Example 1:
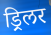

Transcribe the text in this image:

ड्रिलर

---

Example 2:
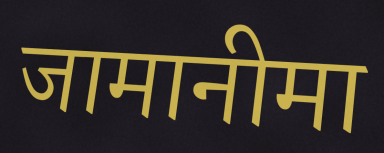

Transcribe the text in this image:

जामानीमा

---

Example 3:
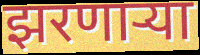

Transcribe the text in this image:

झरणाऱ्या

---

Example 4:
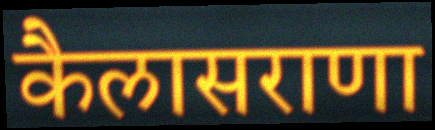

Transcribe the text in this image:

कैलासराणा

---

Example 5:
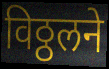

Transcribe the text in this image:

विठ्ठलने